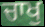
ਚਾਖੁ